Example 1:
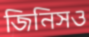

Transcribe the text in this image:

জিনিসও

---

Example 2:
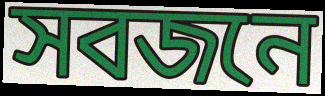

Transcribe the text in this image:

সবজনে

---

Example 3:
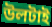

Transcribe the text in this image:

উলটাই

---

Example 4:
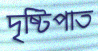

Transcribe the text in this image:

দৃষ্টিপাত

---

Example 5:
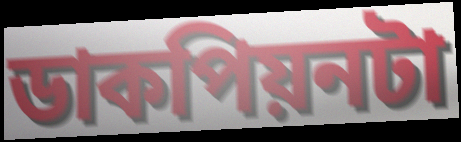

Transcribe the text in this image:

ডাকপিয়নটা